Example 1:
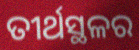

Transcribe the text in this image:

ତୀର୍ଥସ୍ଥଳର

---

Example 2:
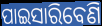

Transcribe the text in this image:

ପାଇସାରିବେଣି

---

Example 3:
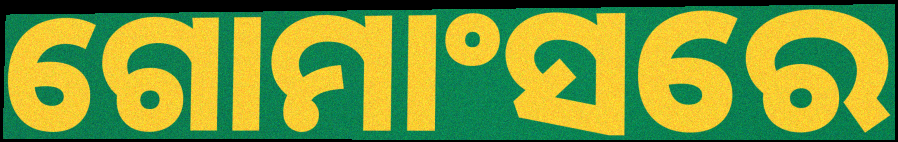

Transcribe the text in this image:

ଗୋମାଂସରେ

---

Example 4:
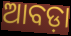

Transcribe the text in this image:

ଆବଡ଼ା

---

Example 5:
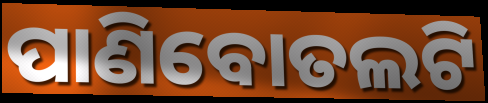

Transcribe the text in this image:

ପାଣିବୋତଲଟି